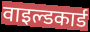
वाइल्डकार्ड